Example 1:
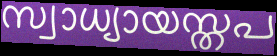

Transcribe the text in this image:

സ്വാധ്യായസ്തപ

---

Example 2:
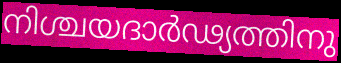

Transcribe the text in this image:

നിശ്ചയദാർഢ്യത്തിനു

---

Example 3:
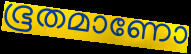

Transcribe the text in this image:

ഭൂതമാണോ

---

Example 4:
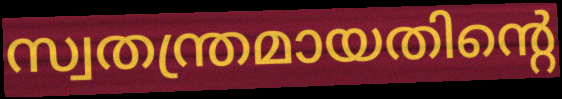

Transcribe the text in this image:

സ്വതന്ത്രമായതിന്റെ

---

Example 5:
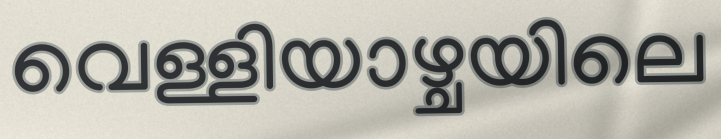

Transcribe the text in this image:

വെള്ളിയാഴ്ചയിലെ